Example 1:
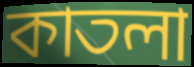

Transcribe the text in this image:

কাতলা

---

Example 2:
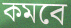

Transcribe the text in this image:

কমবে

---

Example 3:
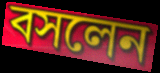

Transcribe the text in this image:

বসলেন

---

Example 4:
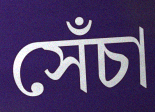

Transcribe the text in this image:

সেঁচা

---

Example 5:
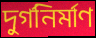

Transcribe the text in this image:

দুর্গনির্মাণ